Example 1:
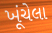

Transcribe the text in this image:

ખૂંચેલા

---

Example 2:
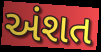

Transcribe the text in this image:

અંશત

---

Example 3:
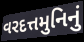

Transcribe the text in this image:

વરદત્તમુનિનું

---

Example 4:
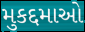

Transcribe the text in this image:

મુકદ્દમાઓ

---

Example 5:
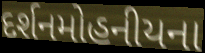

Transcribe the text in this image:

દર્શનમોહનીયના